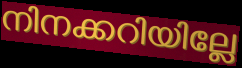
നിനക്കറിയില്ലേ